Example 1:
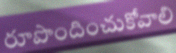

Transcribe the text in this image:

రూపొందించుకోవాలి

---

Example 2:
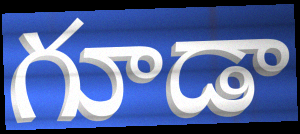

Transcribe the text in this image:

గూడా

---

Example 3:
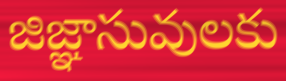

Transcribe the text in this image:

జిజ్ఞాసువులకు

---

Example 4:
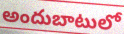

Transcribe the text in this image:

అందుబాటులో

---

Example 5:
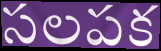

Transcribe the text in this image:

సలపక